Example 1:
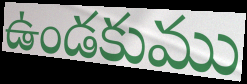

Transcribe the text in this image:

ఉండకుము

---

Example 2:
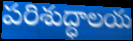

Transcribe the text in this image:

పరిశుద్ధాలయ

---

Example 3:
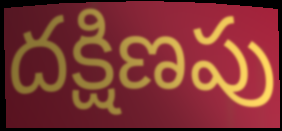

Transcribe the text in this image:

దక్షిణపు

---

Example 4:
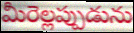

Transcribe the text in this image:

మీరెల్లప్పుడును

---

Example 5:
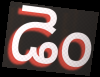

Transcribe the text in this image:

డెం